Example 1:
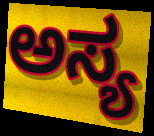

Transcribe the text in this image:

ಅಸ್ಯ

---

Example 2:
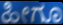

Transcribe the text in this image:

ಹೀಗೂ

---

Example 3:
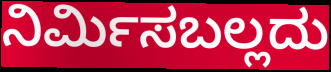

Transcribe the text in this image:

ನಿರ್ಮಿಸಬಲ್ಲದು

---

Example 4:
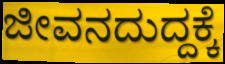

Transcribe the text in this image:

ಜೀವನದುದ್ದಕ್ಕೆ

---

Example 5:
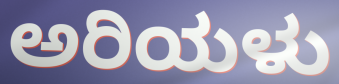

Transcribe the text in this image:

ಅರಿಯಳು